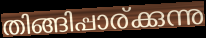
തിങ്ങിപ്പാര്ക്കുന്നു